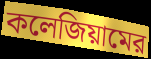
কলেজিয়ামের